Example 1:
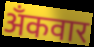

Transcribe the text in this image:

अँकवार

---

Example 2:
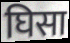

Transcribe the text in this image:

घिसा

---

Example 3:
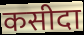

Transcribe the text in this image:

कसीदा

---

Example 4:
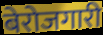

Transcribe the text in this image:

बेरोजगारी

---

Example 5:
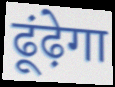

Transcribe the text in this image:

ढूंढ़ेगा